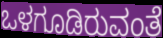
ಒಳಗೂಡಿರುವಂತೆ